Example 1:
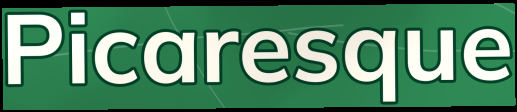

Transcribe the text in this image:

Picaresque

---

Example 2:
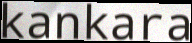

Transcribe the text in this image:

kankara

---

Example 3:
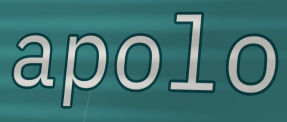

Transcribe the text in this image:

apolo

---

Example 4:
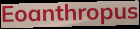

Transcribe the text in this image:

Eoanthropus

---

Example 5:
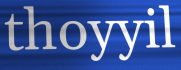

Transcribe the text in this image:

thoyyil